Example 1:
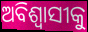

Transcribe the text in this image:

ଅବିଶ୍ୱାସୀକୁ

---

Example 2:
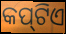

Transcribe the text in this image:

କପ୍‍ଟିଏ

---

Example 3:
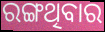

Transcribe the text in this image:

ରଙ୍ଗଥିବାର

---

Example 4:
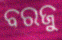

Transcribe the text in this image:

ବରଜୁ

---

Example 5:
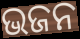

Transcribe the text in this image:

ଭଜନ